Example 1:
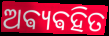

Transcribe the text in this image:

ଅଵ୍ୟଵହିତ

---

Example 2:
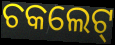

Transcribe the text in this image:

ଚକଲେଟ୍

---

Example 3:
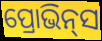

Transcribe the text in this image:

ପ୍ରୋଭିନ୍‌ସ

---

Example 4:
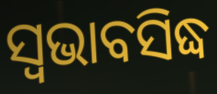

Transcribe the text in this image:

ସ୍ଵଭାବସିଦ୍ଧ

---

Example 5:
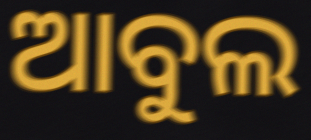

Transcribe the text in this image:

ଆବୁଲ